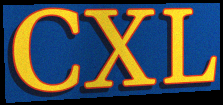
CXL